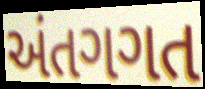
અંતગગત